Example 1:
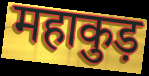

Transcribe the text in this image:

महाकुड़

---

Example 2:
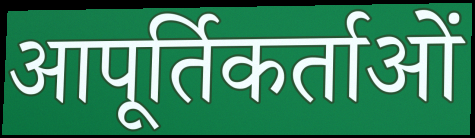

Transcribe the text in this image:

आपूर्तिकर्ताओं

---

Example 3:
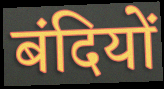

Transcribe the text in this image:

बंदियों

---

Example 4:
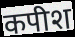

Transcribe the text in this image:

कपीश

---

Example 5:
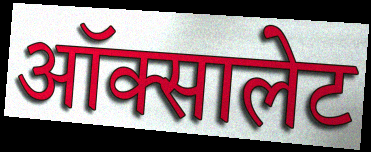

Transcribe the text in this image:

ऑक्सालेट